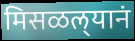
मिसळल्यानं